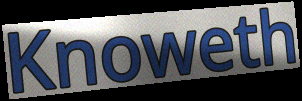
Knoweth